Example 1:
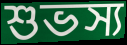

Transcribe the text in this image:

শুভস্য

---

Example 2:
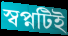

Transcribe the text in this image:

স্বপ্নটিই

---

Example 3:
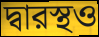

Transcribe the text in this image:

দ্বারস্থও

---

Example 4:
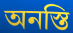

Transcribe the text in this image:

অনস্তি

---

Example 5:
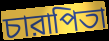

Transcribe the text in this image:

চারাপিতা